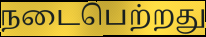
நடைபெற்றது